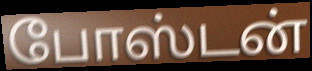
போஸ்டன்